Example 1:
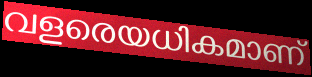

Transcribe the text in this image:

വളരെയധികമാണ്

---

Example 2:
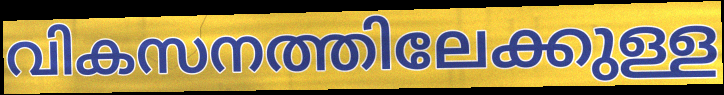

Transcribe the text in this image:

വികസനത്തിലേക്കുള്ള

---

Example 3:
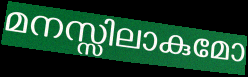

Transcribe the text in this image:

മനസ്സിലാകുമോ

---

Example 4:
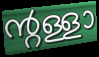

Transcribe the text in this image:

ന്റള്ളാ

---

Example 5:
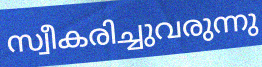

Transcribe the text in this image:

സ്വീകരിച്ചുവരുന്നു